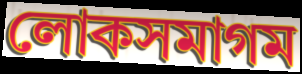
লোকসমাগম